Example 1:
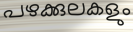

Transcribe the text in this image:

പഴക്കുലകളും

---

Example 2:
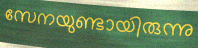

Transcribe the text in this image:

സേനയുണ്ടായിരുന്നു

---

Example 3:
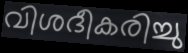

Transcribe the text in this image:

വിശദീകരിച്ചു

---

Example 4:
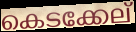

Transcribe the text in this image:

കെടക്കേല്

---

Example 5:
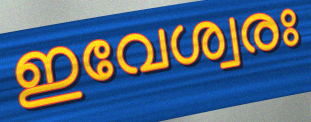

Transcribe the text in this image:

ഇവേശ്വരഃ